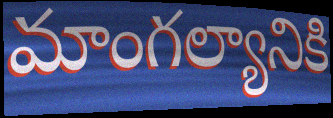
మాంగల్యానికి